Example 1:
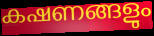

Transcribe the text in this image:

കഷണങ്ങളും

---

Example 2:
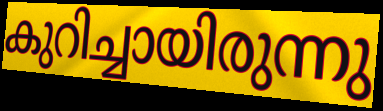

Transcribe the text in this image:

കുറിച്ചായിരുന്നു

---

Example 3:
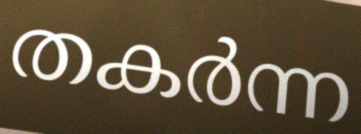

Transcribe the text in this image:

തകർന്ന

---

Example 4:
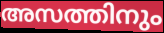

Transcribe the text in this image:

അസത്തിനും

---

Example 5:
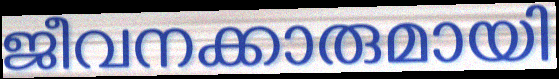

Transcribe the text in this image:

ജീവനക്കാരുമായി